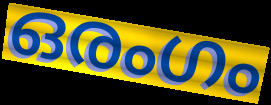
ഒരംഗം